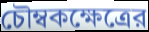
চৌম্বকক্ষেত্রের